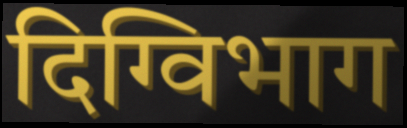
दिग्विभाग